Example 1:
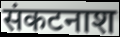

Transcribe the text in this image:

संकटनाश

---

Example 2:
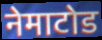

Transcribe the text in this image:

नेमाटोड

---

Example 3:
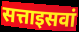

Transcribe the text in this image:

सत्ताइसवां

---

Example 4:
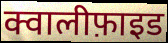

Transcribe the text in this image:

क्वालीफ़ाइड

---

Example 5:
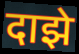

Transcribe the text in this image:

दाझे